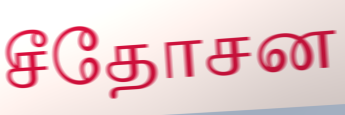
சீதோசன